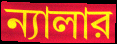
ন্যালার